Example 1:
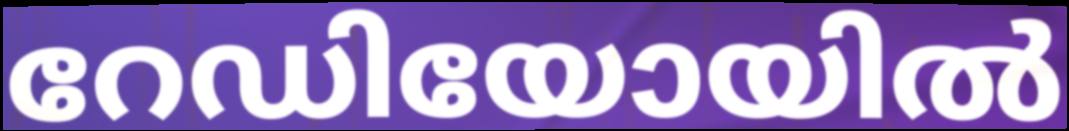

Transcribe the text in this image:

റേഡിയോയിൽ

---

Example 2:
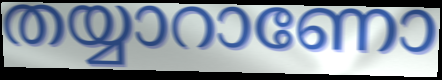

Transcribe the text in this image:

തയ്യാറാണോ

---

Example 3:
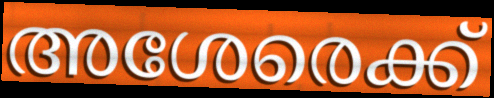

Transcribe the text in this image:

അശേരെക്ക്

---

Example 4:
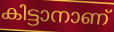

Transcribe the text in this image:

കിട്ടാനാണ്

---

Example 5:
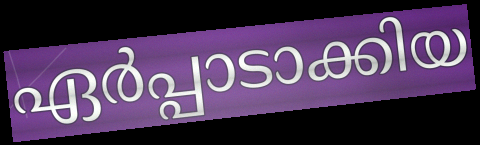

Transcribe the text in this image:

ഏർപ്പാടാക്കിയ